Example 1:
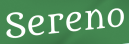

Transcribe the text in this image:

Sereno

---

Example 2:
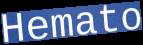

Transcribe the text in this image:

Hemato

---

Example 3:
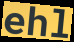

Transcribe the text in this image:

ehl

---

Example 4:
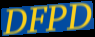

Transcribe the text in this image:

DFPD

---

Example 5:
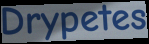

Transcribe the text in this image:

Drypetes